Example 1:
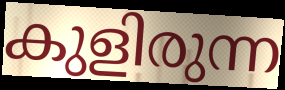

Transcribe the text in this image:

കുളിരുന്ന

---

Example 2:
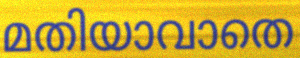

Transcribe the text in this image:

മതിയാവാതെ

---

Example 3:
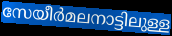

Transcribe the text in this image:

സേയീർമലനാട്ടിലുള്ള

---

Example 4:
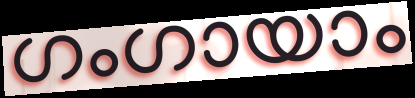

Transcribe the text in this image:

ഗംഗായാം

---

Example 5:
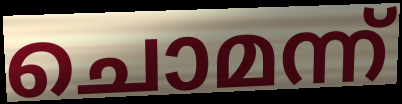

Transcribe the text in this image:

ചൊമന്ന്